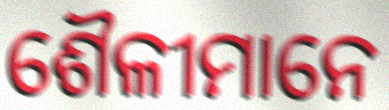
ଶୈଳୀମାନେ